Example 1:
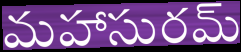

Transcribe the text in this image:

మహాసురమ్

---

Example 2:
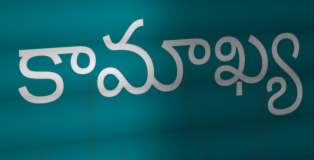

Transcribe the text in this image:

కామాఖ్య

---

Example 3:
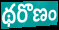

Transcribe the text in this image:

థరొణం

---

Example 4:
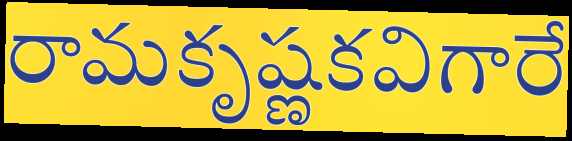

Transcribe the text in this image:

రామకృష్ణకవిగారే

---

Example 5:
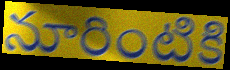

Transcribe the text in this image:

నూరింటికి